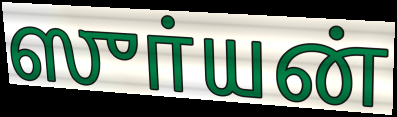
ஸுர்யன்